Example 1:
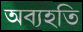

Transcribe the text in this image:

অব্যহতি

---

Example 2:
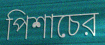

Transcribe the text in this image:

পিশাচের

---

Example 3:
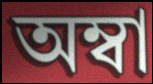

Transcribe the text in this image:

অম্বা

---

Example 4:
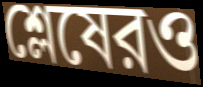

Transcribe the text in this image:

শ্লেষেরও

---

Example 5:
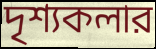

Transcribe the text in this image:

দৃশ্যকলার